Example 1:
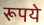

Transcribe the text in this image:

रूपये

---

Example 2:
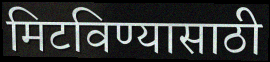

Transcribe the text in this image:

मिटविण्यासाठी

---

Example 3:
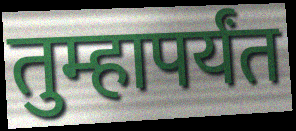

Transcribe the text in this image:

तुम्हापर्यंत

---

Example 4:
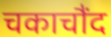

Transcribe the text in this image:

चकाचौंद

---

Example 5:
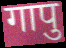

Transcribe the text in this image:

गापु